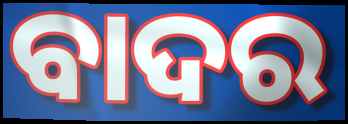
ବାଦର